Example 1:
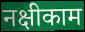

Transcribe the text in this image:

नक्षीकाम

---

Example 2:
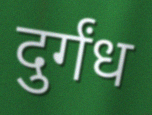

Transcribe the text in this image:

दुर्गंध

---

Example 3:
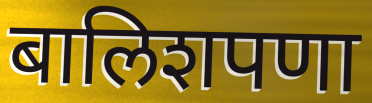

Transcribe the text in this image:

बालिशपणा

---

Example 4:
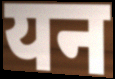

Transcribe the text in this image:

यन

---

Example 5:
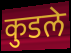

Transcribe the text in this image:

कुडले